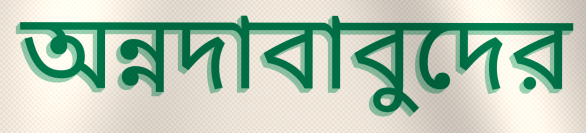
অন্নদাবাবুদের